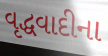
વૃદ્ધવાદીના